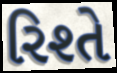
રિશ્તે